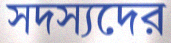
সদস্যদের